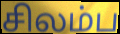
சிலம்ப